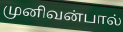
முனிவன்பால்